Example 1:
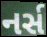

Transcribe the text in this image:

નર્સ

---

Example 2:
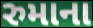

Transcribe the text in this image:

રુમાના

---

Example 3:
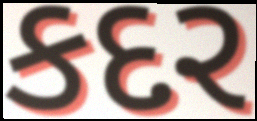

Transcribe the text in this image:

કદર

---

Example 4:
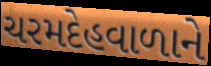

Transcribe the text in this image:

ચરમદેહવાળાને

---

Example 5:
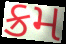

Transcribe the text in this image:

ક્રમ